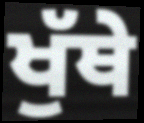
ਖੁੱਥੇ